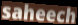
saheech